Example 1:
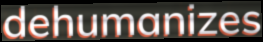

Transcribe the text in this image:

dehumanizes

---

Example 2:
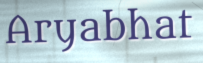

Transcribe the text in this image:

Aryabhat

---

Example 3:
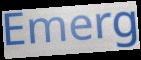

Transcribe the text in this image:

Emerg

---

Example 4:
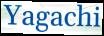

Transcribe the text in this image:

Yagachi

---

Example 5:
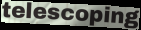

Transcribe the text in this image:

telescoping